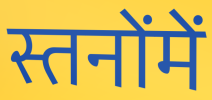
स्तनोंमें